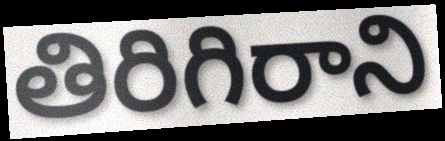
తిరిగిరాని